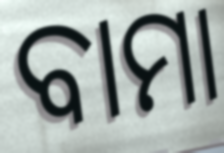
ବାମା